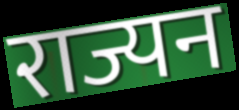
राज्यन